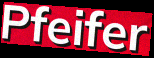
Pfeifer